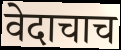
वेदाचाच